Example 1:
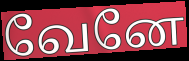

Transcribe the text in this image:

வேனே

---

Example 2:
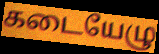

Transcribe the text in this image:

கடையேழு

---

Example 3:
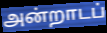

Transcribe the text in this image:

அன்றாடப்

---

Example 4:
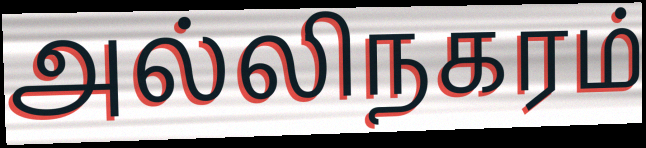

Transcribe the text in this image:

அல்லிநகரம்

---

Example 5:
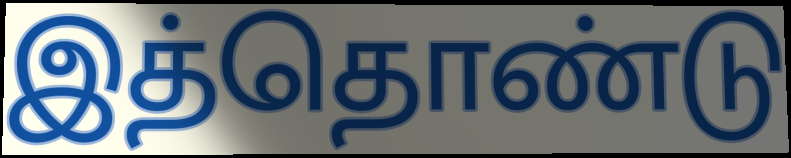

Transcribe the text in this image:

இத்தொண்டு